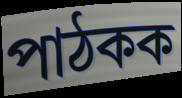
পাঠকক